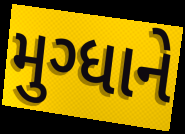
મુગ્ધાને